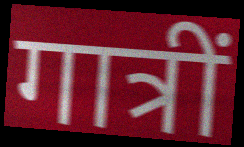
गात्रीं